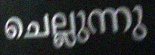
ചെല്ലുന്നു